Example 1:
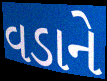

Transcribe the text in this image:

વડાને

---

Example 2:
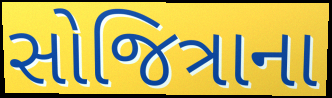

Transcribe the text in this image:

સોજિત્રાના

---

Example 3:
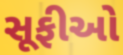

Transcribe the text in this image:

સૂફીઓ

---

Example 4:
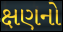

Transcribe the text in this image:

ક્ષણનો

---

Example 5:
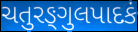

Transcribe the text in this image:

ચતુરઙ્ગુલપાદકં